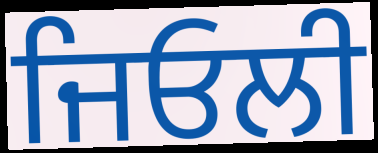
ਜਿਓਲੀ